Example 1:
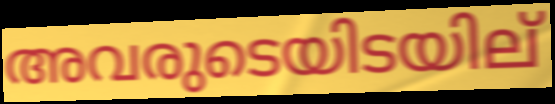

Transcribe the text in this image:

അവരുടെയിടയില്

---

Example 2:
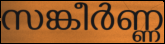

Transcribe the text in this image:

സങ്കീർണ്ണ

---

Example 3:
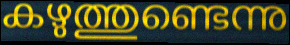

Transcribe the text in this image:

കഴുത്തുണ്ടെന്നു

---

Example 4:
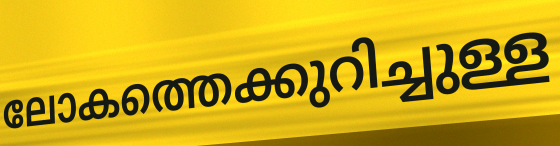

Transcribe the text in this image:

ലോകത്തെക്കുറിച്ചുള്ള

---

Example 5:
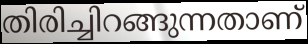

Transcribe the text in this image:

തിരിച്ചിറങ്ങുന്നതാണ്